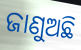
ଜାଣୁଅଛି